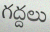
గద్దలు